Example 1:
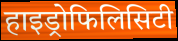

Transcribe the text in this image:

हाइड्रोफिलिसिटी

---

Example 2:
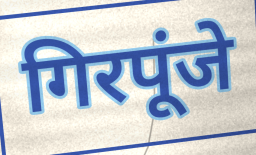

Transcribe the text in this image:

गिरपूंजे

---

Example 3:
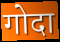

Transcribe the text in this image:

गोदा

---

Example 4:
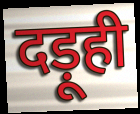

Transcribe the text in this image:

दड़ूही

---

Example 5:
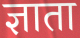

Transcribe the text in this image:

ज्ञाता